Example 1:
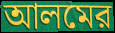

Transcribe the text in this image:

আলমের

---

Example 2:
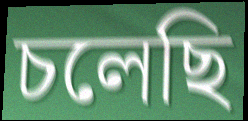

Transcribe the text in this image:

চলেছি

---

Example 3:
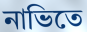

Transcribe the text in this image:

নাভিতে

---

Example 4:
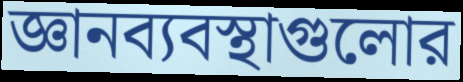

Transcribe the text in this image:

জ্ঞানব্যবস্থাগুলোর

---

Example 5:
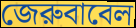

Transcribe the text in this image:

জেরুবাবেল